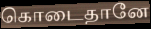
கொடைதானே